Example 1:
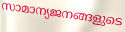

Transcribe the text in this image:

സാമാന്യജനങ്ങളുടെ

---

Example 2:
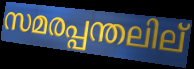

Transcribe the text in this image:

സമരപ്പന്തലില്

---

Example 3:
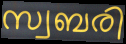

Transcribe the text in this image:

സ്വബരി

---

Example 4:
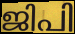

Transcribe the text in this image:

ജിപി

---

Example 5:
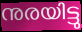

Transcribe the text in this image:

നുരയിട്ടു